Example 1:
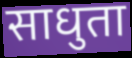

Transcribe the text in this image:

साधुता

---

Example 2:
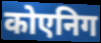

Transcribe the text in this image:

कोएनिग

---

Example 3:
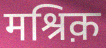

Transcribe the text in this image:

मश्रिक़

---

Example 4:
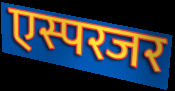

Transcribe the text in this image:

एस्परजर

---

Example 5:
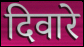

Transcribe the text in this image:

दिवारे